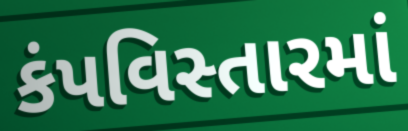
કંપવિસ્તારમાં